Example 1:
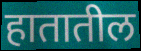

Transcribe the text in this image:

हातातील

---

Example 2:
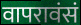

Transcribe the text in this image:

वापरावंसं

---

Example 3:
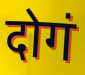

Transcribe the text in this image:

दोगं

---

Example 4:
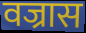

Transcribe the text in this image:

वज्रास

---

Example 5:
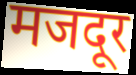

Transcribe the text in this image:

मजदूर